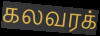
கலவரக்